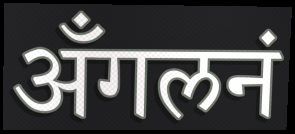
अँगलनं